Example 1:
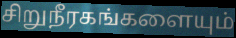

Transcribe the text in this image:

சிறுநீரகங்களையும்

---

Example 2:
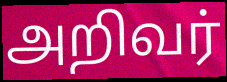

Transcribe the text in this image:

அறிவர்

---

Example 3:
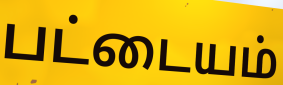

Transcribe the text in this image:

பட்டையம்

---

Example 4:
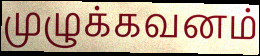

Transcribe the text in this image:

முழுக்கவனம்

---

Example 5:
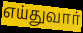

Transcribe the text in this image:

எய்துவார்